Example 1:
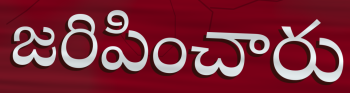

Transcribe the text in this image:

జరిపించారు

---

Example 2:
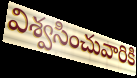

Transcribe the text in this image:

విశ్వసించువారికి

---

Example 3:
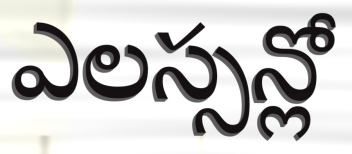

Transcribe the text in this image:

ఎలస్సన్లో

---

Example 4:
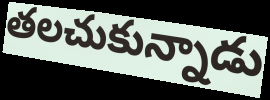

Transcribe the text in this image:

తలచుకున్నాడు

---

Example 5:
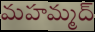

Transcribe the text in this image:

మహమ్మద్